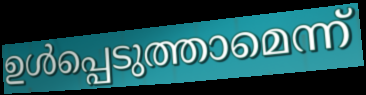
ഉൾപ്പെടുത്താമെന്ന്